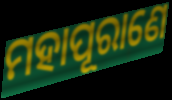
ମହାପୂରାଣେ